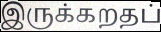
இருக்கறதப்